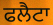
ਫਲੈਟਾ